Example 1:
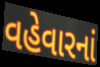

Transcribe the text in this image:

વહેવારનાં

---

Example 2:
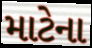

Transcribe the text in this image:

માટેના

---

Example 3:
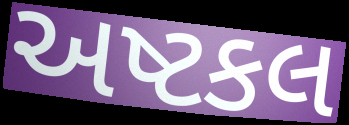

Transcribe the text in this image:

અષ્ટકલ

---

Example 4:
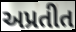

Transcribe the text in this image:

અપ્રતીત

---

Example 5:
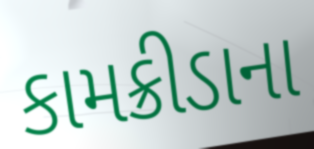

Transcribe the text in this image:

કામક્રીડાના